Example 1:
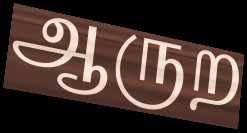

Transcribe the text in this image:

ஆருற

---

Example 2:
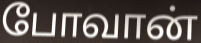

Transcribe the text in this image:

போவான்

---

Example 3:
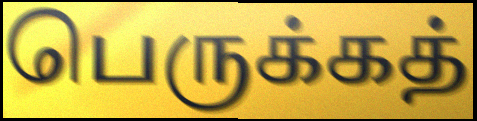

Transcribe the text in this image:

பெருக்கத்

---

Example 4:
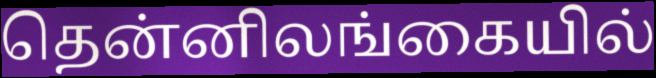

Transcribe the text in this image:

தென்னிலங்கையில்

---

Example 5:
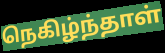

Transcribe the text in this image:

நெகிழ்ந்தாள்